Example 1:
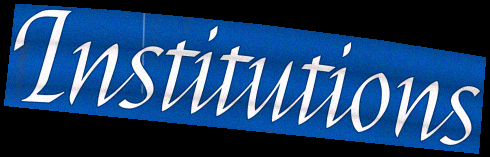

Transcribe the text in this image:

Institutions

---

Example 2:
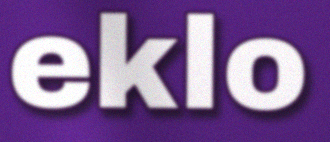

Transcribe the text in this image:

eklo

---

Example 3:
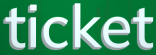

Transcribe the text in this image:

ticket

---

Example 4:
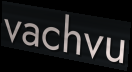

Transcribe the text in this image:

vachvu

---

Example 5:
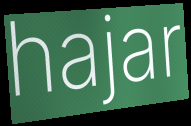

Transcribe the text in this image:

hajar